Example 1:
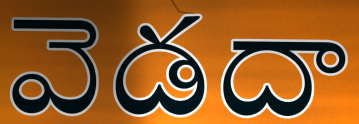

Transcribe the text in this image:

వెడదా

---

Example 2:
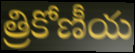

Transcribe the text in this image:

త్రికోణీయ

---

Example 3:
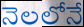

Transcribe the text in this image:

నెలలోనే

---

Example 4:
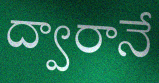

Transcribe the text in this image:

ద్వారానే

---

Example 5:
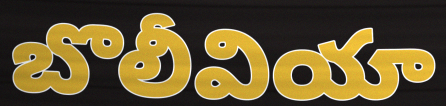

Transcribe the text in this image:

బొలీవియా